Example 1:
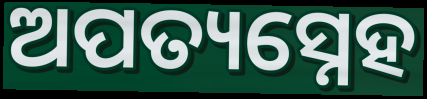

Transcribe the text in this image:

ଅପତ୍ୟସ୍ନେହ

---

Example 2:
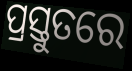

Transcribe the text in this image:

ପ୍ରସ୍ତୁତରେ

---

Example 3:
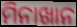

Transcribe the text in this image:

ମିନାଖାନ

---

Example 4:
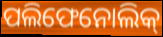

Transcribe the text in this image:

ପଲିଫେନୋଲିକ୍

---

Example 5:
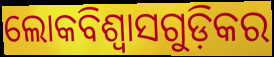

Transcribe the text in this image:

ଲୋକବିଶ୍ଵାସଗୁଡ଼ିକର